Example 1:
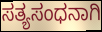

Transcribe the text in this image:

ಸತ್ಯಸಂಧನಾಗಿ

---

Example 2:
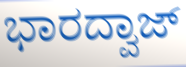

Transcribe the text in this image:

ಭಾರದ್ವಾಜ್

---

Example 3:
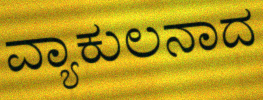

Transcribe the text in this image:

ವ್ಯಾಕುಲನಾದ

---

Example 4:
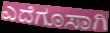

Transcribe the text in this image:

ಎದೆಗೂಸಾಗಿ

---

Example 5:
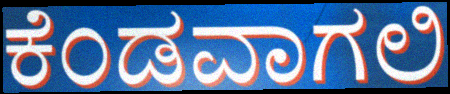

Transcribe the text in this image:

ಕೆಂಡವಾಗಲಿ